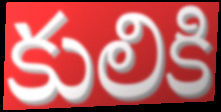
కులికి